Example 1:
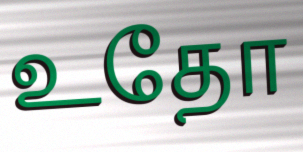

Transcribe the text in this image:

உதோ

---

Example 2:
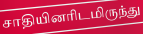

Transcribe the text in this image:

சாதியினரிடமிருந்து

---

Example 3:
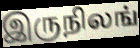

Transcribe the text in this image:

இருநிலங்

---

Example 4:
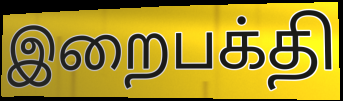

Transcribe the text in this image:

இறைபக்தி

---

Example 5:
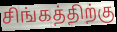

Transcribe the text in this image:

சிங்கத்திற்கு